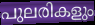
പുലരികളും